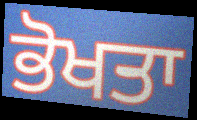
ਭੋਖਤਾ